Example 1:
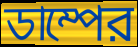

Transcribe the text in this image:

ডাম্পের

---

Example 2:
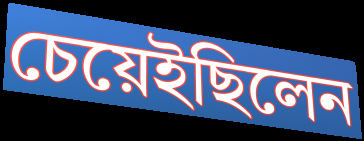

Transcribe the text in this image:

চেয়েইছিলেন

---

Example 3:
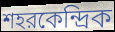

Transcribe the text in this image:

শহরকেন্দ্রিক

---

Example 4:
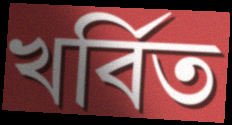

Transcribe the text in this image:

খর্বিত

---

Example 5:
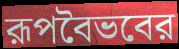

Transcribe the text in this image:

রূপবৈভবের